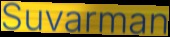
Suvarman